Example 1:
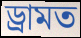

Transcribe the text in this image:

ড্ৰামত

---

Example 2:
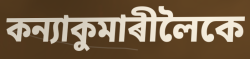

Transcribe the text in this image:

কন্যাকুমাৰীলৈকে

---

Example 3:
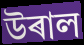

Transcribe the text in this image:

উৰাল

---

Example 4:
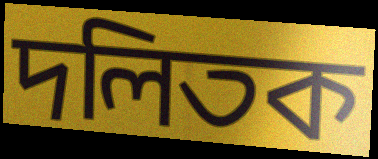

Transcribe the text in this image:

দলিতক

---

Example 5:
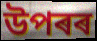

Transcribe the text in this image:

উপৰৰ